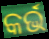
କର୍ଭ